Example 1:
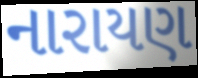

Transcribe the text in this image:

નારાયણ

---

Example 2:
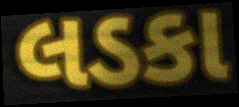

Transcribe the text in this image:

લડકા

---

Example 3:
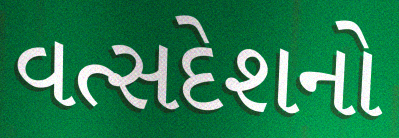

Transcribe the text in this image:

વત્સદેશનો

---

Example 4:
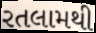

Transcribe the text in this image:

રતલામથી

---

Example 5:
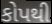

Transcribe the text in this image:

કોપથી